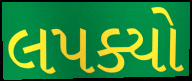
લપક્યો